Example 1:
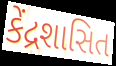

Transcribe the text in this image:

કેંદ્રશાસિત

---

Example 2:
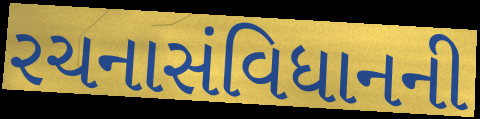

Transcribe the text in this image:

રચનાસંવિધાનની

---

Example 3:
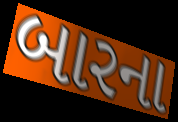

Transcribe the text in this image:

બારના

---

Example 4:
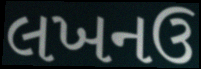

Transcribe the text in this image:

લખનઉ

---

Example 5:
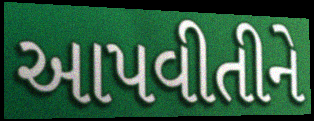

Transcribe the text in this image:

આપવીતીને